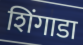
शिंगाडा